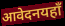
आवेदनयहाँ